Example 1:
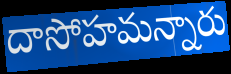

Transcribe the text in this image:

దాసోహమన్నారు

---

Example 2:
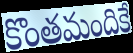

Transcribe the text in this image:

కొంతమందికే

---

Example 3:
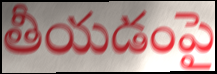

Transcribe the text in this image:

తీయడంపై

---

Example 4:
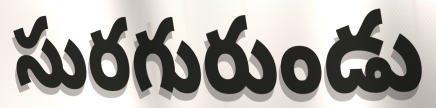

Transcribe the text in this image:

సురగురుండు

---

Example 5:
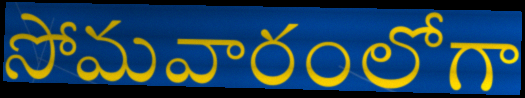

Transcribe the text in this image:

సోమవారంలోగా